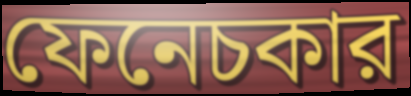
ফেনেচকার